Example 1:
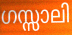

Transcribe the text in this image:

ഗസ്സാലി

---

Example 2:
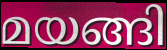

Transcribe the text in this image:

മയങ്ങി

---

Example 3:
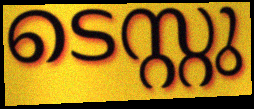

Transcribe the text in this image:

ടെസ്റ്റു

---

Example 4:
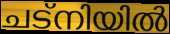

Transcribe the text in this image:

ചട്നിയിൽ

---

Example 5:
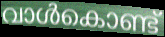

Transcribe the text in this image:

വാൾകൊണ്ട്